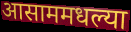
आसाममधल्या